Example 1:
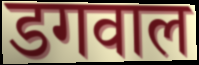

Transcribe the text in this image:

डगवाल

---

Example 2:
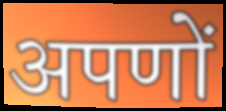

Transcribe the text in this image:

अपणों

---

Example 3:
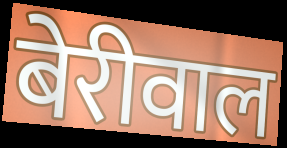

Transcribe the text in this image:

बेरीवाल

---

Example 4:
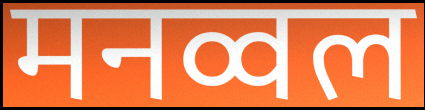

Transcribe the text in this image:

मनव्वल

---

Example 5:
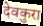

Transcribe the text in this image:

देवकुरा